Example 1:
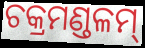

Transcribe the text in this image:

ଚକ୍ରମଣ୍ଡଳମ୍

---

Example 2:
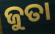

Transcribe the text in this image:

ଜୁତା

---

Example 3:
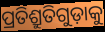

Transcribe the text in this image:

ପ୍ରତିଶ୍ରୁତିଗୁଡ଼ାକୁ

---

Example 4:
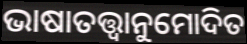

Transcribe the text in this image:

ଭାଷାତତ୍ତ୍ୱାନୁମୋଦିତ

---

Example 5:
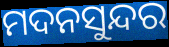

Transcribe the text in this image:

ମଦନସୁନ୍ଦର